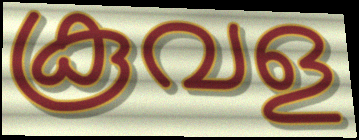
കൂവള